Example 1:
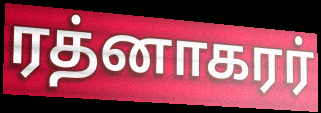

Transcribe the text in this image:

ரத்னாகரர்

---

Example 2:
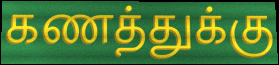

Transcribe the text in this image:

கணத்துக்கு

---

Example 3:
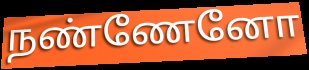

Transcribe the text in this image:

நண்ணேனோ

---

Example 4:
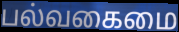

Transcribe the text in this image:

பல்வகைமை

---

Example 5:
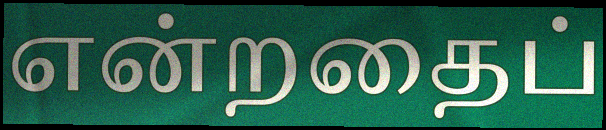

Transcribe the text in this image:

என்றதைப்